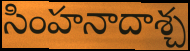
సింహనాదాశ్చ